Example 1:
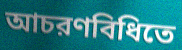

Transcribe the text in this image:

আচরণবিধিতে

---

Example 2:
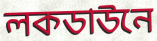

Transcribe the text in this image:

লকডাউনে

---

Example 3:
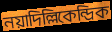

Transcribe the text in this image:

নয়াদিল্লিকেন্দ্রিক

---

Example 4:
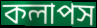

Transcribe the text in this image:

কলাপস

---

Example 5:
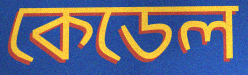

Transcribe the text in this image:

কেডেল